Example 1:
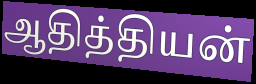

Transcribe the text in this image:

ஆதித்தியன்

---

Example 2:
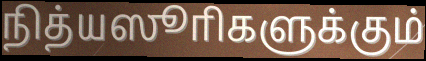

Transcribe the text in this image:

நித்யஸூரிகளுக்கும்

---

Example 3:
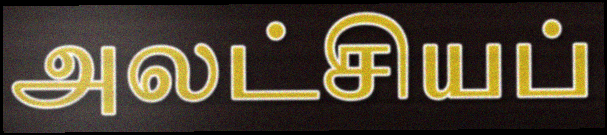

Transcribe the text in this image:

அலட்சியப்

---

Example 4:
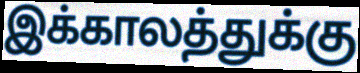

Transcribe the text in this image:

இக்காலத்துக்கு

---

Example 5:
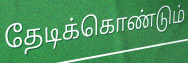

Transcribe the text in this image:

தேடிக்கொண்டும்